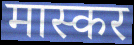
मास्कर